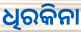
ଧିରକିନା